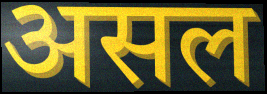
असल